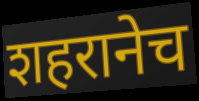
शहरानेच